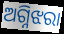
ଅଗ୍ନିଝରା